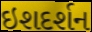
ઇશદર્શન